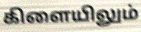
கிளையிலும்